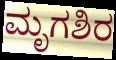
ಮೃಗಶಿರ